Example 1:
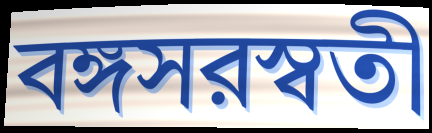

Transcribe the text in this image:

বঙ্গসরস্বতী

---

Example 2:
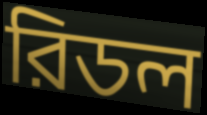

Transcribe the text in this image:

রিডল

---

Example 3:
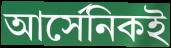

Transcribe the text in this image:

আর্সেনিকই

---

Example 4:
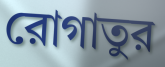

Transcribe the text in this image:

রোগাতুর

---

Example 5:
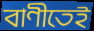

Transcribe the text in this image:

বাণীতেই